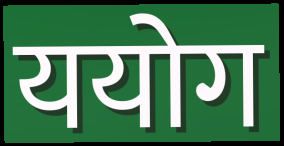
ययोग